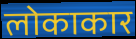
लोकाकार